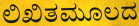
ಲಿಖಿತಮೂಲದ